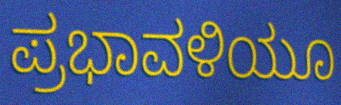
ಪ್ರಭಾವಳಿಯೂ